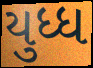
યુધ્ધ